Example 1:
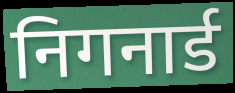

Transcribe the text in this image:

निगनार्ड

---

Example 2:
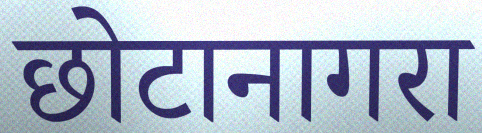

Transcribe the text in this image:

छोटानागरा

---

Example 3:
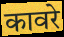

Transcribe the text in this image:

कावरे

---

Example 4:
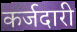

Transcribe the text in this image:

कर्जदारी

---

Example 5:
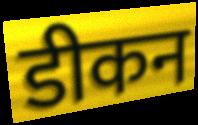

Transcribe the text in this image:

डीकन